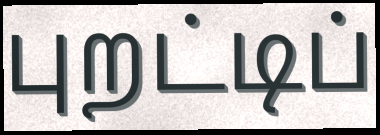
புறட்டிப்